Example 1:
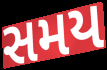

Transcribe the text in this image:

સમય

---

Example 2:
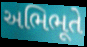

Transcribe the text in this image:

અભિભૂતે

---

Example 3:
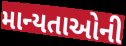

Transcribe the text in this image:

માન્યતાઓની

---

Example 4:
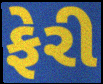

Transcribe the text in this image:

ફેરી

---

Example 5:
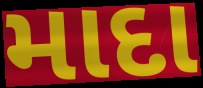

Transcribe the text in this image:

માદા